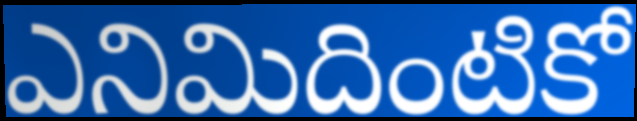
ఎనిమిదింటికో